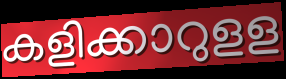
കളിക്കാറുളള